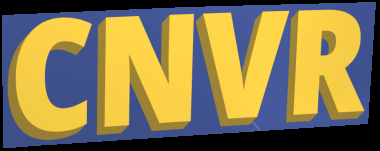
CNVR